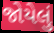
જોયેલું